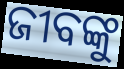
ଜୀବଙ୍କୁ